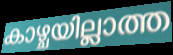
കാഴ്ചയില്ലാത്ത